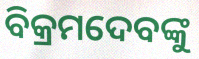
ବିକ୍ରମଦେବଙ୍କୁ